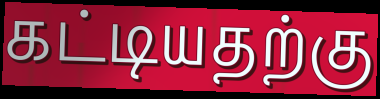
கட்டியதற்கு